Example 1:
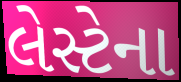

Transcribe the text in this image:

લેસ્ટેના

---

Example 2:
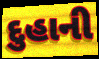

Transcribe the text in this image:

દુહાની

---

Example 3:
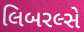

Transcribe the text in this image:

લિબરલ્સે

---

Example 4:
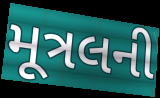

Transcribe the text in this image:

મૂત્રલની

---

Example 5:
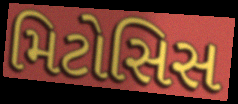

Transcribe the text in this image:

મિટોસિસ